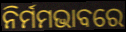
ନିର୍ମମଭାବରେ